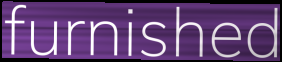
furnished